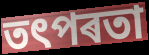
তৎপৰতা